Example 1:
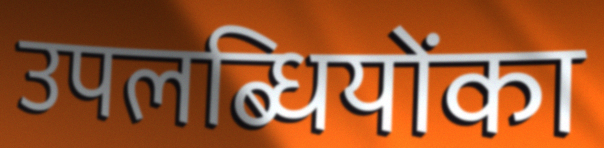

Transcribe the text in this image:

उपलब्धियोंका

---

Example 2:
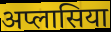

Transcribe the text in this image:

अप्लासिया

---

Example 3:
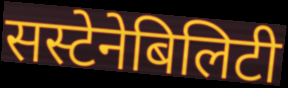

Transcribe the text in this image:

सस्टेनेबिलिटी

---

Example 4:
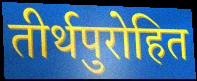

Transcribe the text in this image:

तीर्थपुरोहित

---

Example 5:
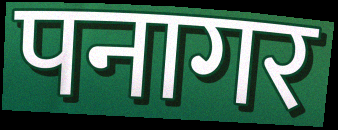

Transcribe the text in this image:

पनागर